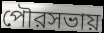
পৌরসভায়